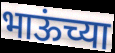
भाऊंच्या